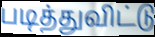
படித்துவிட்டு